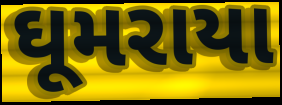
ઘૂમરાયા